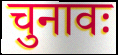
चुनावः